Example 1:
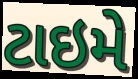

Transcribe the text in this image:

ટાઇમે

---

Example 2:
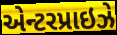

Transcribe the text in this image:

એન્ટરપ્રાઇઝે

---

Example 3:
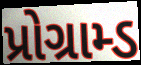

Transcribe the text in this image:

પ્રોગ્રામ્ડ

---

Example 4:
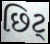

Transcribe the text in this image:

છિટ્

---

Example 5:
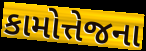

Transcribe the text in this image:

કામોત્તેજના